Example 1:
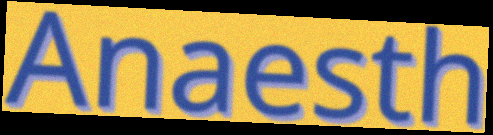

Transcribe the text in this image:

Anaesth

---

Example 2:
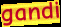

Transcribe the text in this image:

gandi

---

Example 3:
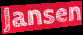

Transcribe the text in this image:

Jansen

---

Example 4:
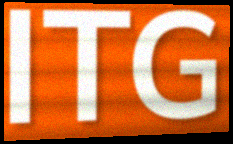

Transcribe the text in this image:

ITG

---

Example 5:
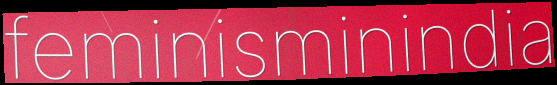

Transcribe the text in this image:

feminisminindia